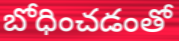
బోధించడంతో